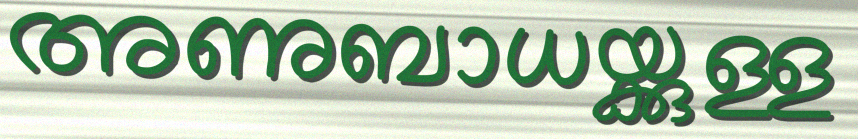
അണുബാധയ്ക്കുള്ള